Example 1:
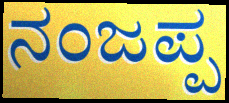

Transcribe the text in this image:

ನಂಜಪ್ಪ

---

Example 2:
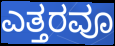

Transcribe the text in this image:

ಎತ್ತರವೂ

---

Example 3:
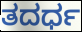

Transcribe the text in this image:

ತದರ್ಧ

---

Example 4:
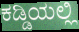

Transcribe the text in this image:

ಕಡ್ಡಿಯಲ್ಲಿ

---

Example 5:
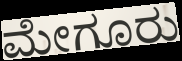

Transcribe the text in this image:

ಮೇಗೂರು